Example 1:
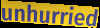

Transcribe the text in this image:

unhurried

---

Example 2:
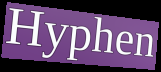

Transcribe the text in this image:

Hyphen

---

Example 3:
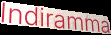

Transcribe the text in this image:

Indiramma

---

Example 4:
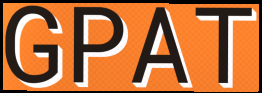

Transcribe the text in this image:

GPAT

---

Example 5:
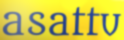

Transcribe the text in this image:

asattu